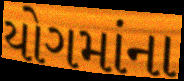
યોગમાંના